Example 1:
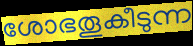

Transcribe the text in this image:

ശോഭതൂകീടുന്ന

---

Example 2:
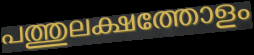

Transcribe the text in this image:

പത്തുലക്ഷത്തോളം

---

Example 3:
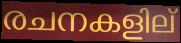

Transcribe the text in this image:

രചനകളില്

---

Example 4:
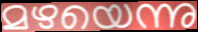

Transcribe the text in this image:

മഴയെന്നു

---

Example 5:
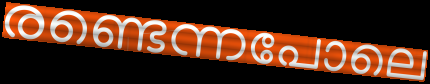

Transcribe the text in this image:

രണ്ടെന്നപോലെ